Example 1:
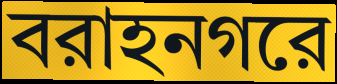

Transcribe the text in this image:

বরাহনগরে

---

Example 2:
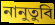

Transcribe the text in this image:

নানুতুবি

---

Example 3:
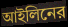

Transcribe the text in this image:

আইলিনের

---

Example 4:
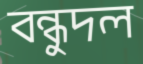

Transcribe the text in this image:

বন্ধুদল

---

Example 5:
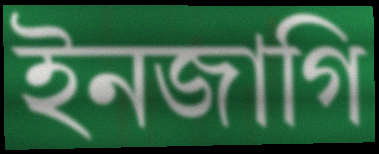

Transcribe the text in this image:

ইনজাগি